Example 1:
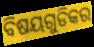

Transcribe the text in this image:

ବିଷୟଗୁଡିକର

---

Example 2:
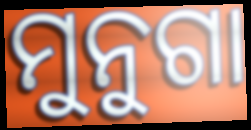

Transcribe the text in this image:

ମୁନୁଗା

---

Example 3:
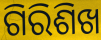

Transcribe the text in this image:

ଗିରିଶିଖ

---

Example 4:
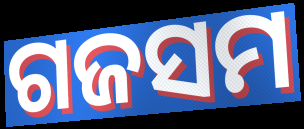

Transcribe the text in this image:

ଗଜସମ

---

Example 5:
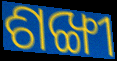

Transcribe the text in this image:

ଶଙ୍ଖୀ